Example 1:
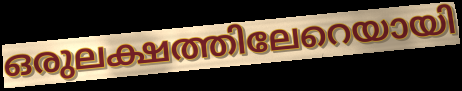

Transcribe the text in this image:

ഒരുലക്ഷത്തിലേറെയായി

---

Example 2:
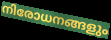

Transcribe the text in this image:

നിരോധനങ്ങളും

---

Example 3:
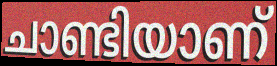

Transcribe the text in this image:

ചാണ്ടിയാണ്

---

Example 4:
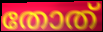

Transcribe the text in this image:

തോത്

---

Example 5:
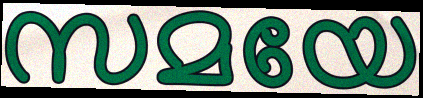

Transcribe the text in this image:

സമയേ